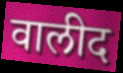
वालीद